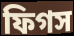
ফিগস